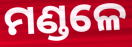
ମଣ୍ଡଳେ